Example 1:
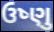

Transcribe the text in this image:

ઉષ્ણુ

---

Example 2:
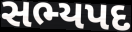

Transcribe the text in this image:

સભ્યપદ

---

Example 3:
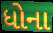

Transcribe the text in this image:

ધોના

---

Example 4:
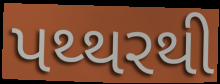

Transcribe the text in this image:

પથ્થરથી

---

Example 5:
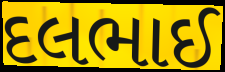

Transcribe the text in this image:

દલભાઈ